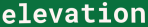
elevation